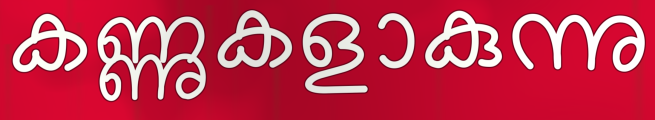
കണ്ണുകളാകുന്നു